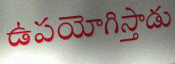
ఉపయోగిస్తాడు